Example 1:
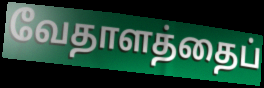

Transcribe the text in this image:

வேதாளத்தைப்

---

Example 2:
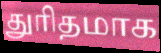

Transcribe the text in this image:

துரிதமாக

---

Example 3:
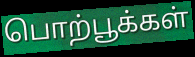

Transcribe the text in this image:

பொற்பூக்கள்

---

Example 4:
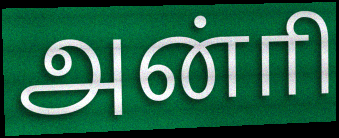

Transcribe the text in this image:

அன்ரி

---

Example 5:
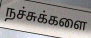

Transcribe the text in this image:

நச்சுக்களை